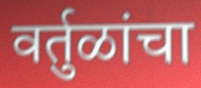
वर्तुळांचा